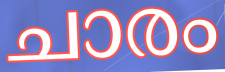
ചാരം